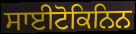
ਸਾਈਟੋਕਿਨਿਨ